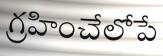
గ్రహించేలోపే